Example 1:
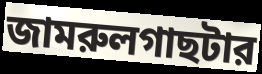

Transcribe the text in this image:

জামরুলগাছটার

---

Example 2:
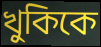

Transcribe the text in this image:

খুকিকে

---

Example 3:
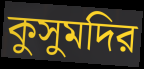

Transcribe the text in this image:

কুসুমদির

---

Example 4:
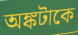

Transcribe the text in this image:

অঙ্কটাকে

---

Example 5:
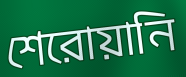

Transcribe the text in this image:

শেরোয়ানি